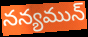
నన్యమున్